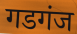
गडगंज